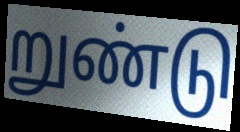
றுண்டு